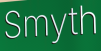
Smyth